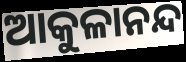
ଆକୁଳାନନ୍ଦ